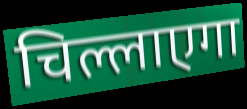
चिल्लाएगा